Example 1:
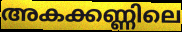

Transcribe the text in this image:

അകക്കണ്ണിലെ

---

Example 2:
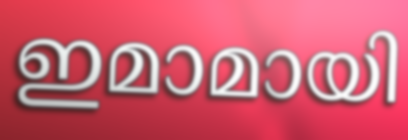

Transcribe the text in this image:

ഇമാമായി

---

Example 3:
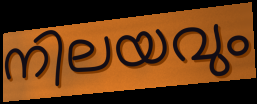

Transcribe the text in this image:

നിലയവും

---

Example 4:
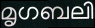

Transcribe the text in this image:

മൃഗബലി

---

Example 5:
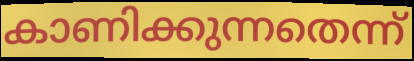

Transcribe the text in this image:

കാണിക്കുന്നതെന്ന്